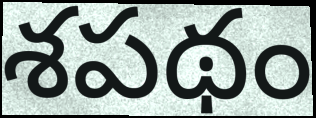
శపథం